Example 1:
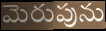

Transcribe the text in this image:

మెరుపును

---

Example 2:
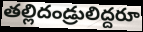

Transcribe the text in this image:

తల్లిదండ్రులిద్దరూ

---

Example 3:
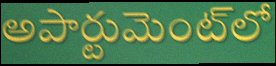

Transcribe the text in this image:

అపార్టుమెంట్‌లో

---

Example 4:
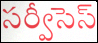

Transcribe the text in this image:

సర్వీసెస్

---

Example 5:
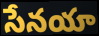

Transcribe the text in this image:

సేనయా